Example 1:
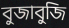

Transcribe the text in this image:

বুজাবুজি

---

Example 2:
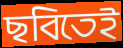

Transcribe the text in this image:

ছবিতেই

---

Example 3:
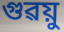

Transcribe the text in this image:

গুৱয়ু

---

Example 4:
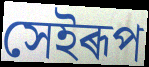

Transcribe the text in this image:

সেইৰূপ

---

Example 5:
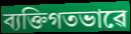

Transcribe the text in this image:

ব্যক্তিগতভাৱে